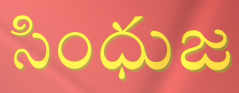
సింధుజ